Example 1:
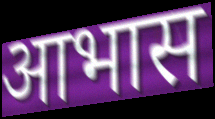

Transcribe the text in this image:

आभास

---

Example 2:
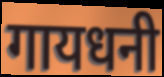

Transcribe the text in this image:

गायधनी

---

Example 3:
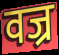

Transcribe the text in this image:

वज्र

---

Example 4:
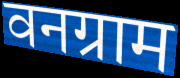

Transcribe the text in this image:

वनग्राम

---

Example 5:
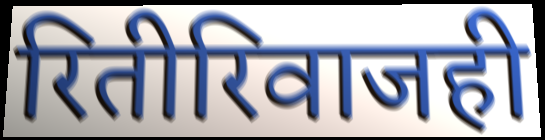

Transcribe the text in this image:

रितीरिवाजही